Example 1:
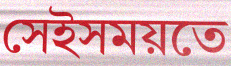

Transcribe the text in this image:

সেইসময়তে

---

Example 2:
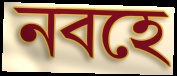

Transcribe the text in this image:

নবহে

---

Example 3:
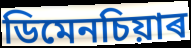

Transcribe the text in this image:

ডিমেনচিয়াৰ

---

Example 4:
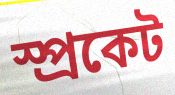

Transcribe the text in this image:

স্প্ৰকেট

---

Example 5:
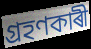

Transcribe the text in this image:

গ্ৰহণকাৰী